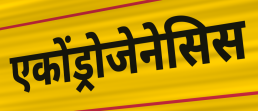
एकोंड्रोजेनेसिस